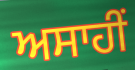
ਅਸਾਹੀਂ